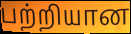
பற்றியான